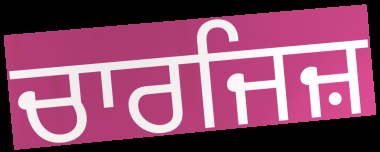
ਚਾਰਜਿਜ਼